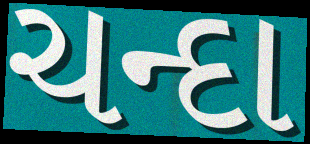
ચન્દા